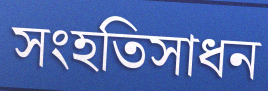
সংহতিসাধন